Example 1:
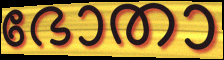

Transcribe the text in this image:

ഭോതാ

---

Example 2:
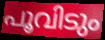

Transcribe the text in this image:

പൂവിടും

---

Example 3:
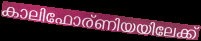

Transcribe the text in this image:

കാലിഫോര്ണിയയിലേക്ക്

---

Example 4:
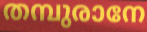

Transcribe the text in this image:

തമ്പുരാനേ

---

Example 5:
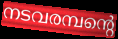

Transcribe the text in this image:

നടവരമ്പന്റെ